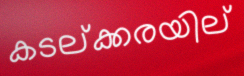
കടല്ക്കരയില്